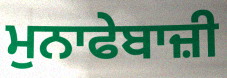
ਮੁਨਾਫੇਬਾਜ਼ੀ